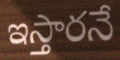
ఇస్తారనే